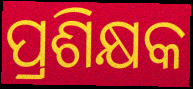
ପ୍ରଶିକ୍ଷକ